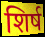
शिर्ष